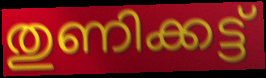
തുണിക്കട്ട്